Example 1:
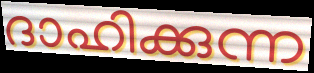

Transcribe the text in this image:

ദാഹിക്കുന്ന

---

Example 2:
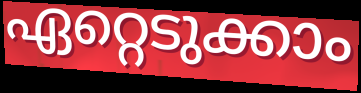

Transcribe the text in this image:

ഏറ്റെടുക്കാം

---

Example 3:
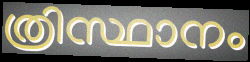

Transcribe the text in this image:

ത്രിസ്ഥാനം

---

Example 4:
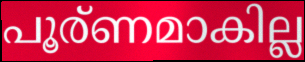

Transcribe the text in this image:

പൂര്ണമാകില്ല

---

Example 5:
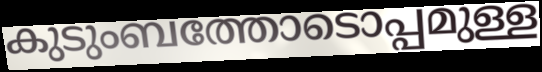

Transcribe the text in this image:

കുടുംബത്തോടൊപ്പമുള്ള